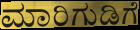
ಮಾರಿಗುಡಿಗೆ